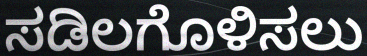
ಸಡಿಲಗೊಳಿಸಲು